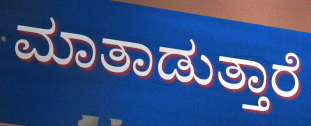
ಮಾತಾಡುತ್ತಾರೆ